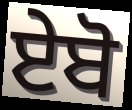
ਏਬੋ